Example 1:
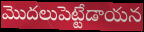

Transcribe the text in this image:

మొదలుపెట్టేడాయన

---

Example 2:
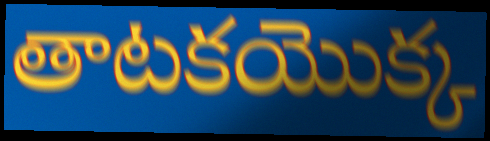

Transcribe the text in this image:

తాటకయొక్క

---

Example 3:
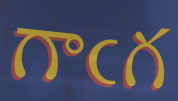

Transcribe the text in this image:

గాఁగ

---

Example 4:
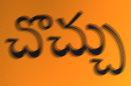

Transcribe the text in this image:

చొచ్చు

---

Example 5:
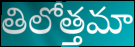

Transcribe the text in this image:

తిలోత్తమా